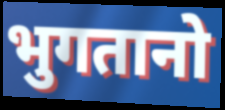
भुगतानो